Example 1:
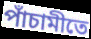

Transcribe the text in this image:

পাঁচামীতে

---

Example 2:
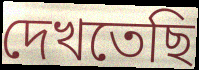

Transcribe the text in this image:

দেখতেছি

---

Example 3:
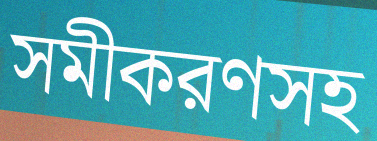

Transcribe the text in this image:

সমীকরণসহ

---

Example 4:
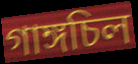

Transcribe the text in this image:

গাঙ্গচিল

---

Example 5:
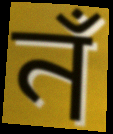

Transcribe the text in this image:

নঁ